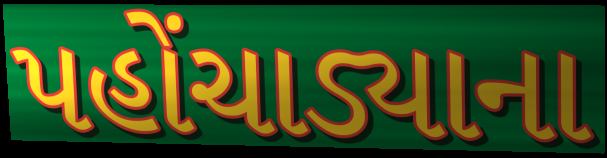
પહોંચાડ્યાના